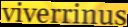
viverrinus